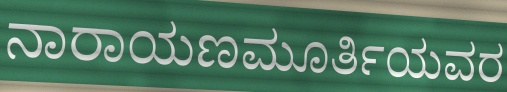
ನಾರಾಯಣಮೂರ್ತಿಯವರ